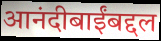
आनंदीबाईंबद्दल